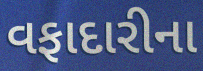
વફાદારીના